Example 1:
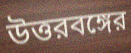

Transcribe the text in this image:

উত্তরবঙ্গের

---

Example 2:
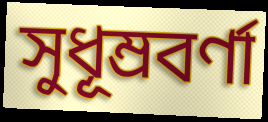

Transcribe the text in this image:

সুধূম্রবর্ণা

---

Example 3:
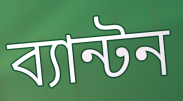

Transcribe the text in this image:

ব্যান্টন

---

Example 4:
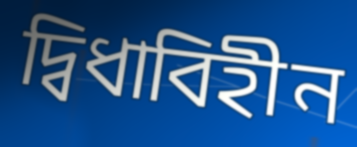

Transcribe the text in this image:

দ্বিধাবিহীন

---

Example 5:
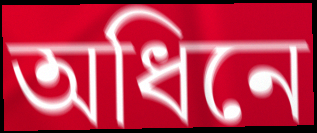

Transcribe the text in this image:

অধিনে